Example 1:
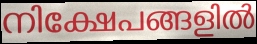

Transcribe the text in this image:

നിക്ഷേപങ്ങളിൽ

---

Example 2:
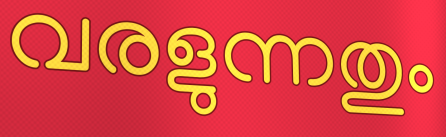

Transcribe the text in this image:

വരളുന്നതും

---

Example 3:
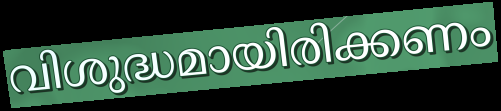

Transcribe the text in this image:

വിശുദ്ധമായിരിക്കണം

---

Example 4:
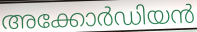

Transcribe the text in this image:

അക്കോർഡിയൻ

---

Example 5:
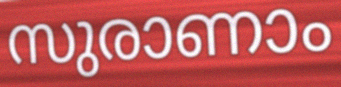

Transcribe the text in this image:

സുരാണാം